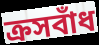
ক্রসবাঁধ